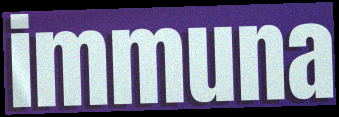
immuna